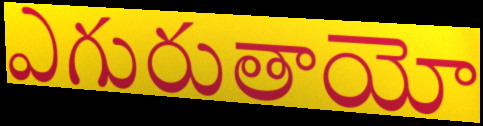
ఎగురుతాయో